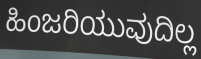
ಹಿಂಜರಿಯುವುದಿಲ್ಲ